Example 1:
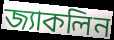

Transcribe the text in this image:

জ্যাকলিন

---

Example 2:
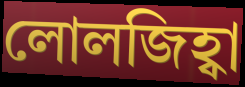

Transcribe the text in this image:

লোলজিহ্বা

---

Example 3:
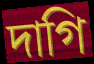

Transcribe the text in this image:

দাগি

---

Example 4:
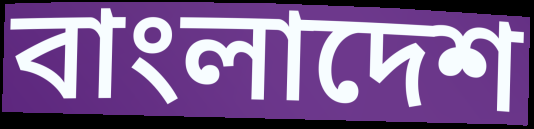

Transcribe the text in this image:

বাংলাদেশ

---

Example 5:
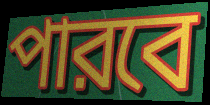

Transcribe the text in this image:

পারবে